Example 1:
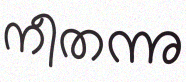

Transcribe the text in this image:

നീതന്നു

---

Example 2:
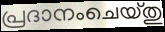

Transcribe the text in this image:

പ്രദാനംചെയ്തു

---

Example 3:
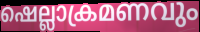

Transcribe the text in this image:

ഷെല്ലാക്രമണവും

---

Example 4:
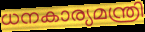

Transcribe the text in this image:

ധനകാര്യമന്ത്രി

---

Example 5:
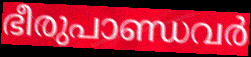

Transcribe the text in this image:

ഭീരുപാണ്ഡവർ